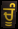
ਚੂੰ